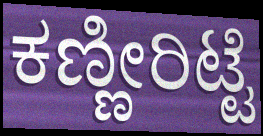
ಕಣ್ಣೀರಿಟ್ಟೆ